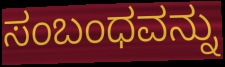
ಸಂಬಂಧವನ್ನು